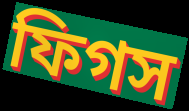
ফিগস